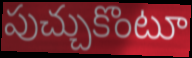
పుచ్చుకొంటూ